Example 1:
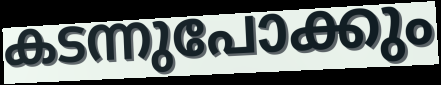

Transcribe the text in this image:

കടന്നുപോക്കും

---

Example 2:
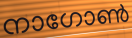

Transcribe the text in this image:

നാഗോൺ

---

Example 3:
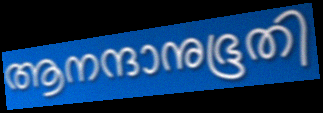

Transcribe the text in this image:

ആനന്ദാനുഭൂതി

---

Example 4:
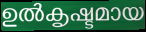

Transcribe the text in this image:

ഉൽകൃഷ്ടമായ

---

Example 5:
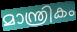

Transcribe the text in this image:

മാന്ത്രികം